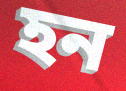
হন